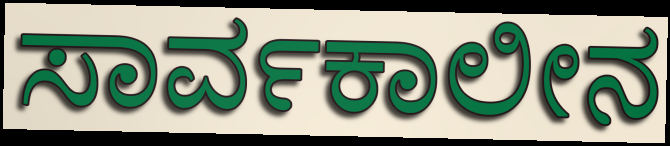
ಸಾರ್ವಕಾಲೀನ